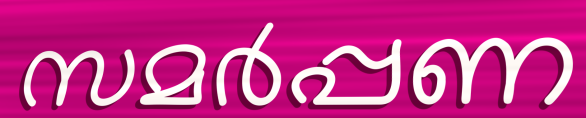
സമർപ്പണ